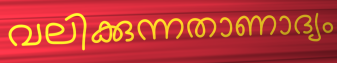
വലിക്കുന്നതാണാദ്യം